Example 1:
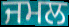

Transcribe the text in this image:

ਜਮਲ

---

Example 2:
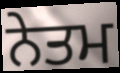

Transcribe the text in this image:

ਨੇਤਮ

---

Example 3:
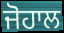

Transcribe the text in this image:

ਜੋਹਾਲ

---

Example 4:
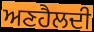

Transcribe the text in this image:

ਅਣਹੈਲਦੀ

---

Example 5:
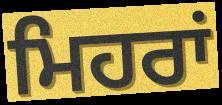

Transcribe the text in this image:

ਮਿਹਰਾਂ